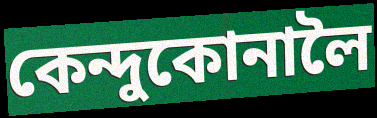
কেন্দুকোনালৈ